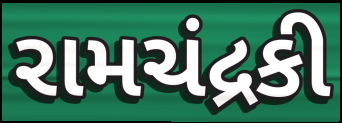
રામચંદ્રકી